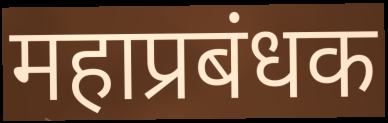
महाप्रबंधक